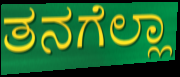
ತನಗೆಲ್ಲಾ